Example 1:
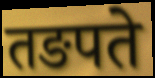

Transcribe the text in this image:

तङपते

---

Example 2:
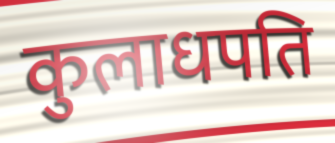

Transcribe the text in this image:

कुलाधपति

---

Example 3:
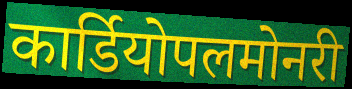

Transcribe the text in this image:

कार्डियोपलमोनरी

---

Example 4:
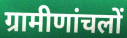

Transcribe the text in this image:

ग्रामीणांचलों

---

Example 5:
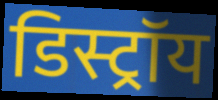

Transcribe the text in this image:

डिस्ट्रॉय